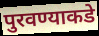
पुरवण्याकडे